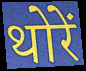
थोरें